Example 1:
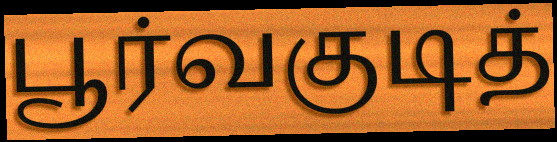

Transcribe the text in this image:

பூர்வகுடித்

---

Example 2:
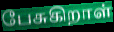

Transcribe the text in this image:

பேசுகிறாள்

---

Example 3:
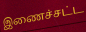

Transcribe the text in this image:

இணைச்சட்ட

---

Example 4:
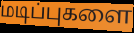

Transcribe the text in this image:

மடிப்புகளை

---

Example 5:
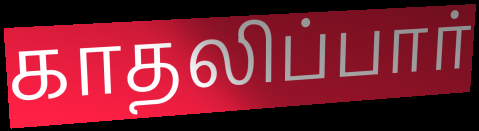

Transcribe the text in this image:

காதலிப்பார்